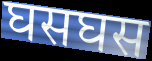
घसघस